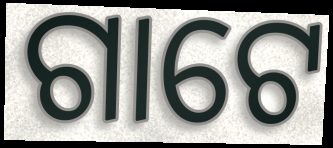
ଗାଟେ